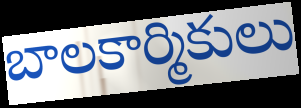
బాలకార్మికులు